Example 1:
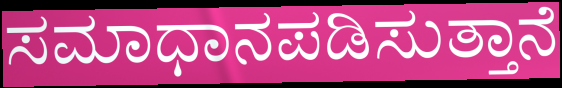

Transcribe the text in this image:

ಸಮಾಧಾನಪಡಿಸುತ್ತಾನೆ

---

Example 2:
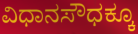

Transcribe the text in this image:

ವಿಧಾನಸೌಧಕ್ಕೂ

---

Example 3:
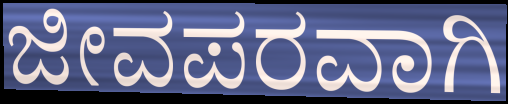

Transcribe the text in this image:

ಜೀವಪರವಾಗಿ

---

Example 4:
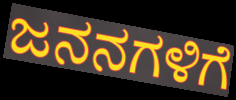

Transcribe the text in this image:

ಜನನಗಳಿಗೆ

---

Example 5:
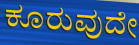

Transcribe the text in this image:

ಕೂರುವುದೇ